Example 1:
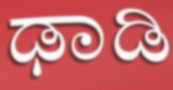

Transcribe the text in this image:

ಢಾಡಿ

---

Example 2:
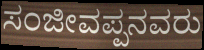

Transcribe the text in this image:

ಸಂಜೀವಪ್ಪನವರು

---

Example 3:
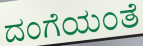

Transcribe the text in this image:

ದಂಗೆಯಂತೆ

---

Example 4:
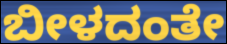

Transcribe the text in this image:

ಬೀಳದಂತೇ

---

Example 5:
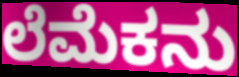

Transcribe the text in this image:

ಲೆಮೆಕನು